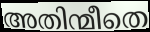
അതിന്മീതെ